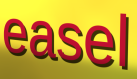
easel